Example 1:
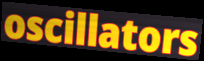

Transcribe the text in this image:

oscillators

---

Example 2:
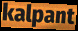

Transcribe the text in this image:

kalpant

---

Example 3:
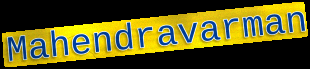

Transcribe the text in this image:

Mahendravarman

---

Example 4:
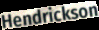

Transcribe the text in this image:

Hendrickson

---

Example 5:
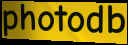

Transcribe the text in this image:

photodb